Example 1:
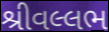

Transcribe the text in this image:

શ્રીવલ્લભ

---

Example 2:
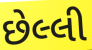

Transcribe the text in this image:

છેલ્લી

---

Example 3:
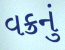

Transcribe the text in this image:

વક્રનું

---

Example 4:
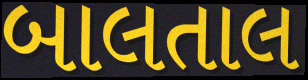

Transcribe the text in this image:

બાલતાલ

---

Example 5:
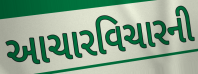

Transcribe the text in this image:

આચારવિચારની